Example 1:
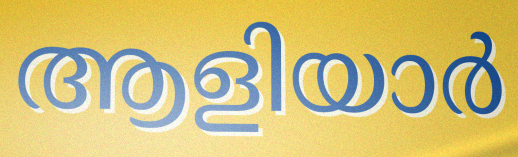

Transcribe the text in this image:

ആളിയാർ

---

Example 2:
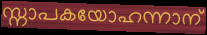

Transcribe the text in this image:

സ്നാപകയോഹന്നാന്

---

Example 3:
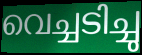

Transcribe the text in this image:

വെച്ചടിച്ചു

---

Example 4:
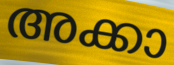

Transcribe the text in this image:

അക്കാ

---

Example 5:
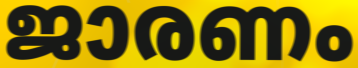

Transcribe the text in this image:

ജാരണം